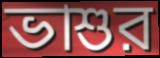
ভাশুর